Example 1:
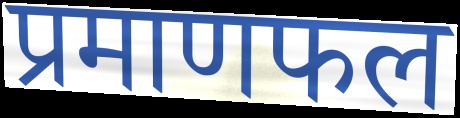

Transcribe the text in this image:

प्रमाणफल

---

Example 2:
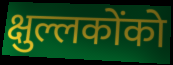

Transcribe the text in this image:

क्षुल्लकोंको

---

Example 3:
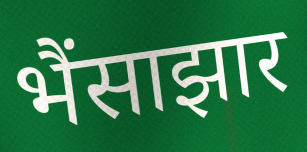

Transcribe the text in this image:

भैंसाझार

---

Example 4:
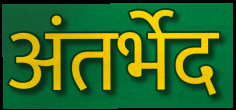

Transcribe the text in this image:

अंतर्भेद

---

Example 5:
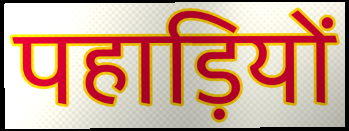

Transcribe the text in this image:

पहाड़ियों